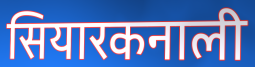
सियारकनाली